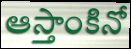
ఆస్తాంకినో